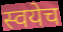
स्वयेच